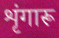
शृंगारू